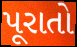
પૂરાતો